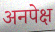
अनपेक्ष